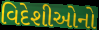
વિદેશીઓનો